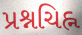
પ્રશ્નચિહ્ન